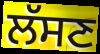
ਲੱਸਣ